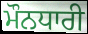
ਮੌਨਧਾਰੀ